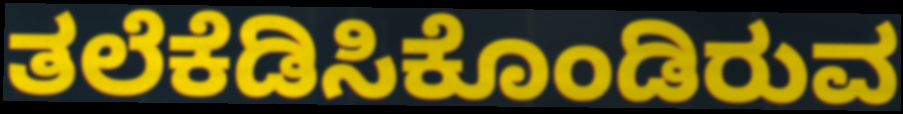
ತಲೆಕೆಡಿಸಿಕೊಂಡಿರುವ